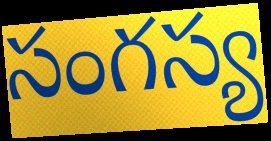
సంగస్య